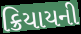
ક્રિયાયની